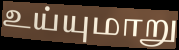
உய்யுமாறு